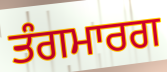
ਤੰਗਮਾਰਗ